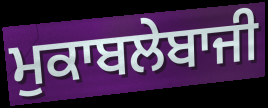
ਮੁਕਾਬਲੇਬਾਜੀ